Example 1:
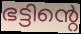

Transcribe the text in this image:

ഭട്ടിന്റെ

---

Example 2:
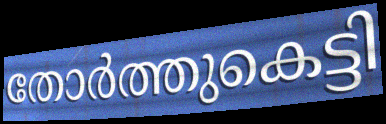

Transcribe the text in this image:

തോർത്തുകെട്ടി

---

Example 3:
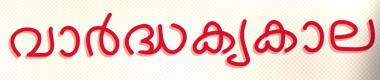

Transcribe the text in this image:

വാർദ്ധക്യകാല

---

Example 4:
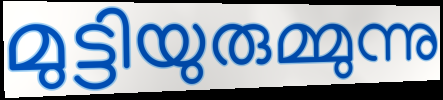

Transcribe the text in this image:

മുട്ടിയുരുമ്മുന്നു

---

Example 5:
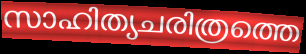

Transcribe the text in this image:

സാഹിത്യചരിത്രത്തെ